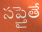
సప్తైతే